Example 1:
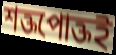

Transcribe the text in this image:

শক্তপোক্তই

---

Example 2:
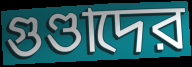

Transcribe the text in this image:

গুণ্ডাদের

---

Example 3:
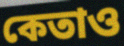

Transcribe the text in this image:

কেতাও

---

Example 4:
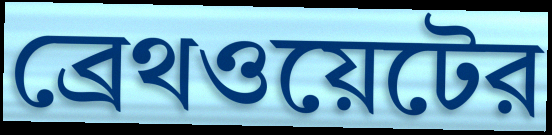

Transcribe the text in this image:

ব্রেথওয়েটের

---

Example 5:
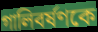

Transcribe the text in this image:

গালিবর্ষণকে